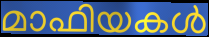
മാഫിയകൾ